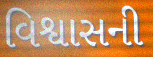
વિશ્વાસની